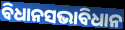
ବିଧାନସଭାବିଧାନ